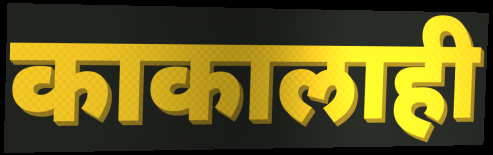
काकालाही